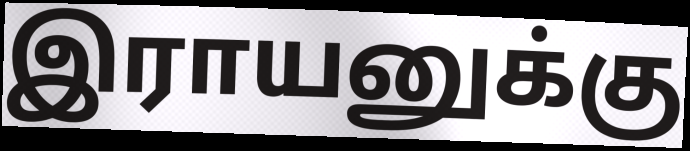
இராயனுக்கு